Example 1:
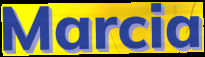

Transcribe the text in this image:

Marcia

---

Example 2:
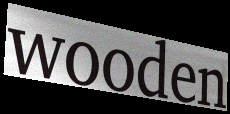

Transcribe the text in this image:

wooden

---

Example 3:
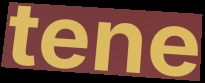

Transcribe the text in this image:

tene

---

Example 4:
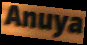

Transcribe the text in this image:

Anuya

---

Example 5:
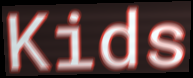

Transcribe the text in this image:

Kids